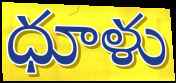
ధూళు